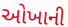
ઓખાની